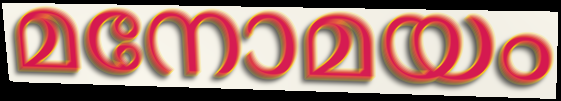
മനോമയം